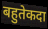
बहुतेकदा